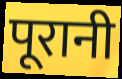
पूरानी